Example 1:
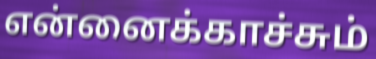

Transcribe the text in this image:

என்னைக்காச்சும்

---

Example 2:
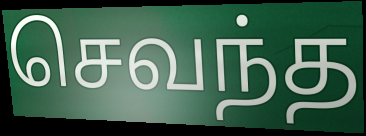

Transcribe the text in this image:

செவந்த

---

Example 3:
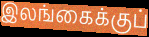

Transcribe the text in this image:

இலங்கைக்குப்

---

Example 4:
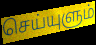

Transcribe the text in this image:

செய்யுளும்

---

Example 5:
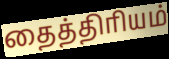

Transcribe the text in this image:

தைத்திரியம்